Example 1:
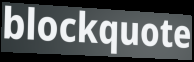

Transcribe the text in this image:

blockquote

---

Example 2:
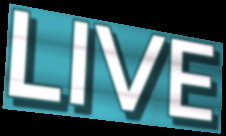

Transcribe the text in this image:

LIVE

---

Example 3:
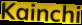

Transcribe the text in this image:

Kainchi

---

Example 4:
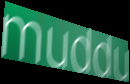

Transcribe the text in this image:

muddu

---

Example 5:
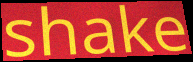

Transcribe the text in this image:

shake